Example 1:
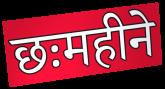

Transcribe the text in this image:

छःमहीने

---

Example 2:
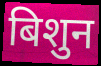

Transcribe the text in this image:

बिशुन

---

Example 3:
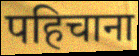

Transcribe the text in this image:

पहिचाना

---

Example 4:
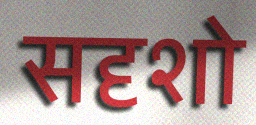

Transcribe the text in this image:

सदृशो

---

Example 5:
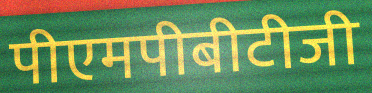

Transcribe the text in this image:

पीएमपीबीटीजी